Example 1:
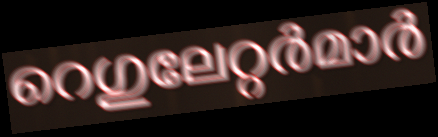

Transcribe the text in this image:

റെഗുലേറ്റർമാർ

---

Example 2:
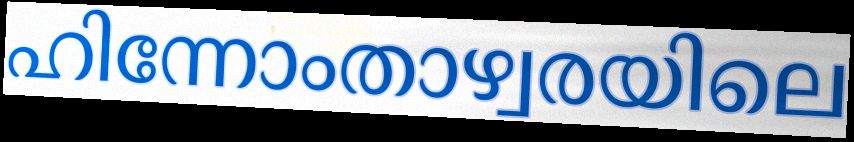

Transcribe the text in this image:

ഹിന്നോംതാഴ്വരയിലെ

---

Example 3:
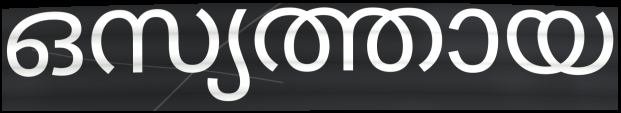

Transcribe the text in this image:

ഒസ്യത്തായ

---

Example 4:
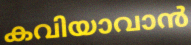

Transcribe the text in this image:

കവിയാവാൻ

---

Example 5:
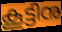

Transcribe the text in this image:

കൂട്ടിനു